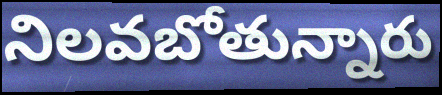
నిలవబోతున్నారు